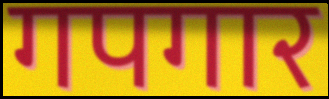
गपगार